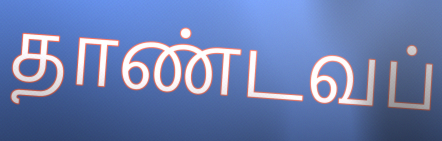
தாண்டவப்